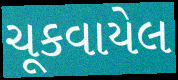
ચૂકવાયેલ